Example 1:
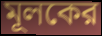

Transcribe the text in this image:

মূলকের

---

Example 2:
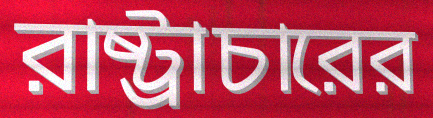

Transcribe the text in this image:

রাষ্ট্রাচারের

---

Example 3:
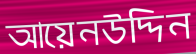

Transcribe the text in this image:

আয়েনউদ্দিন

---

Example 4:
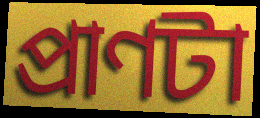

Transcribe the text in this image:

প্রাণটা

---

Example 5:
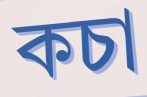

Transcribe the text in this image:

কচা